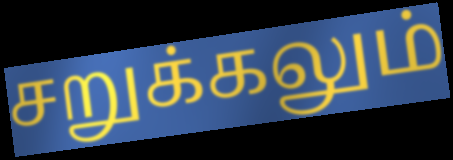
சறுக்கலும்